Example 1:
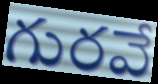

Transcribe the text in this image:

గురవే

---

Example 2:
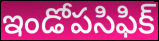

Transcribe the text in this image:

ఇండోపసిఫిక్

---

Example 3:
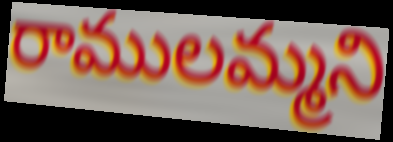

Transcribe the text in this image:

రాములమ్మని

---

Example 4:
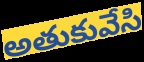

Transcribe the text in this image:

అతుకువేసి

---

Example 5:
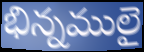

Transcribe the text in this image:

భిన్నములై